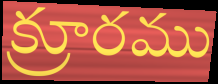
క్రూరము